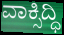
ವಾಕ್ಸಿದ್ಧಿ